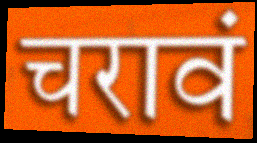
चरावं